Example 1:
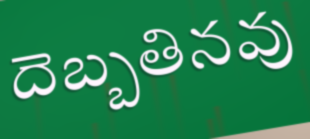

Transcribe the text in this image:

దెబ్బతినవు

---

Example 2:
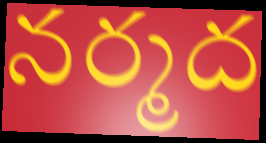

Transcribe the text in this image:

నర్మద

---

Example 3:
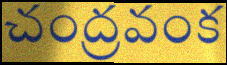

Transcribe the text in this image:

చంద్రవంక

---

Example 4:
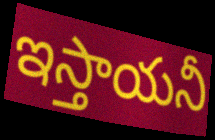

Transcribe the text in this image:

ఇస్తాయనీ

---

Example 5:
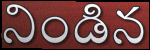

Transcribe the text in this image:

నిండిన